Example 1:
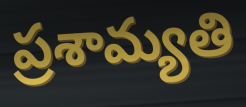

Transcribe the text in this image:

ప్రశామ్యతి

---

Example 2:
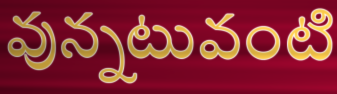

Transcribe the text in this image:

వున్నటువంటి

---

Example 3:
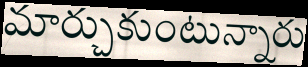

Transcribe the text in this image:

మార్చుకుంటున్నారు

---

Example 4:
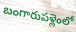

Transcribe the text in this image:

బంగారుపళ్లెంలో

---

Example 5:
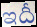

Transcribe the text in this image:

ఇదీ